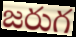
జరుగ